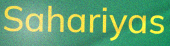
Sahariyas